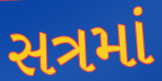
સત્રમાં